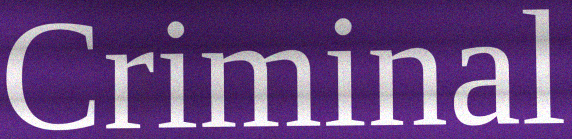
Criminal